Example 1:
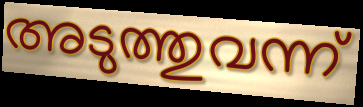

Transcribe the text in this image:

അടുത്തുവന്ന്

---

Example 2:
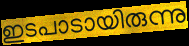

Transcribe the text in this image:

ഇടപാടായിരുന്നു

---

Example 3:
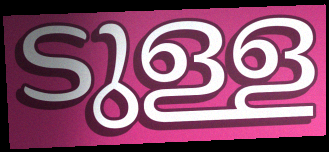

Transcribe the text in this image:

ടുള്ള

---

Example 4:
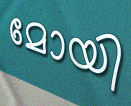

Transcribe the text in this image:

മോയി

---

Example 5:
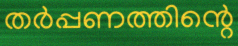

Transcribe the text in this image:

തർപ്പണത്തിന്റെ